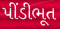
પીંડીભૂત